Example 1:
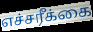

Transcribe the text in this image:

எச்சரீக்கை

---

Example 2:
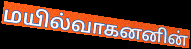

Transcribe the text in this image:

மயில்வாகனனின்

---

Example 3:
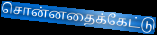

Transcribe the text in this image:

சொன்னதைக்கேட்டு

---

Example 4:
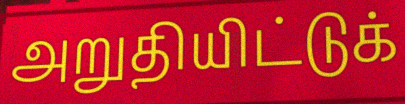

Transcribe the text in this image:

அறுதியிட்டுக்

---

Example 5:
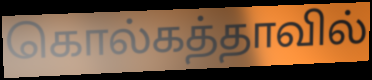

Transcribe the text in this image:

கொல்கத்தாவில்